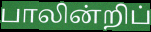
பாலின்றிப்